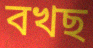
বখছ